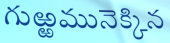
గుఱ్ఱమునెక్కిన